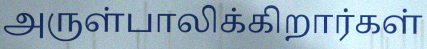
அருள்பாலிக்கிறார்கள்